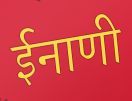
ईनाणी